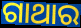
ଗାଥାର